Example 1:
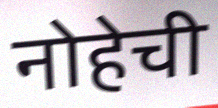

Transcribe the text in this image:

नोहेची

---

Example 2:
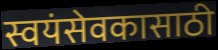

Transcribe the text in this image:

स्वयंसेवकासाठी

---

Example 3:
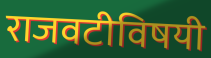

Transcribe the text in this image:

राजवटीविषयी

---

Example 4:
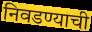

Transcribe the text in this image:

निवडण्याची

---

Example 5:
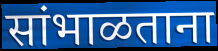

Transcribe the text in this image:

सांभाळताना